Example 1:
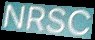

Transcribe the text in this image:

NRSC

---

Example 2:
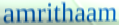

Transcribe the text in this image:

amrithaam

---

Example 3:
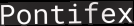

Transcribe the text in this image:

Pontifex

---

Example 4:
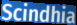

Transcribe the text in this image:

Scindhia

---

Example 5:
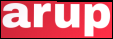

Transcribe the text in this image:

arup